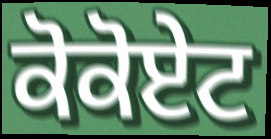
ਕੋਕੋਏਟ